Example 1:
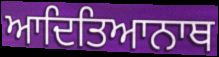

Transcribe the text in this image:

ਆਦਿਤਿਆਨਾਥ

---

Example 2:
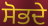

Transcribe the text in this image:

ਸੋਭਦੇ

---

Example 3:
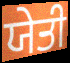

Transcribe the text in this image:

ਯੇਤੀ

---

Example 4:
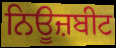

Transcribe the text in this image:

ਨਿਊਜ਼ਬੀਟ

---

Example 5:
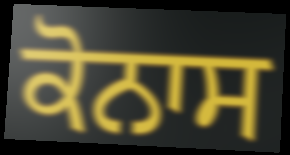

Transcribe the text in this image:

ਕੋਨਾਸ